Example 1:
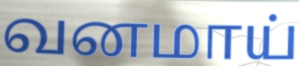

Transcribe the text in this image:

வனமாய்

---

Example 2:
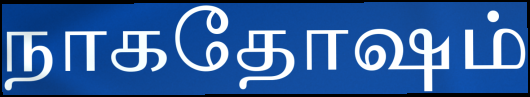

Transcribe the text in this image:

நாகதோஷம்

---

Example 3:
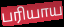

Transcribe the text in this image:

பரியாய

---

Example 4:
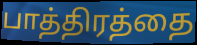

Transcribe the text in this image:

பாத்திரத்தை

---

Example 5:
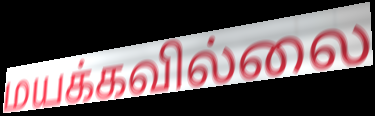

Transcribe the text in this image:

மயக்கவில்லை